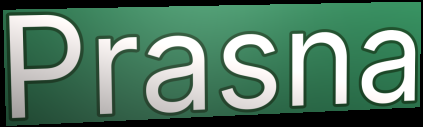
Prasna